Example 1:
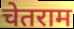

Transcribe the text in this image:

चेतराम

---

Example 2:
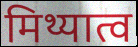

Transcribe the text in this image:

मिथ्‍यात्‍व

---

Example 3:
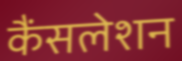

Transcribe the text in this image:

कैंसलेशन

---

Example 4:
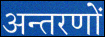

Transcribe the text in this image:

अन्तरणों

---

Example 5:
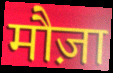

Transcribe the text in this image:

मौज़ा